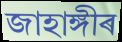
জাহাঙ্গীৰ